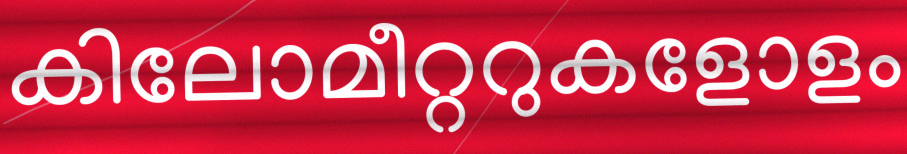
കിലോമീറ്ററുകളോളം